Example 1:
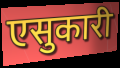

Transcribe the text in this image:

एसुकारी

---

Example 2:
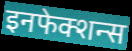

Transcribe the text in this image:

इनफेक्शन्स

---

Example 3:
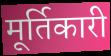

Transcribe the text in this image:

मूर्तिकारी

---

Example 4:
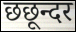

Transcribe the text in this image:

छछून्दर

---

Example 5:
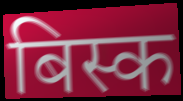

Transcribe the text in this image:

बिस्क